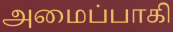
அமைப்பாகி